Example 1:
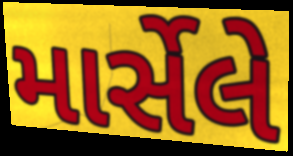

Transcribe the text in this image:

માર્સેલે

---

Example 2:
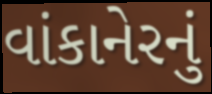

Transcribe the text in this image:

વાંકાનેરનું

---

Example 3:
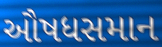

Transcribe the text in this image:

ઔષધસમાન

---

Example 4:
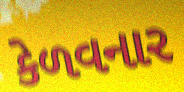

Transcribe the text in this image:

કેળવનાર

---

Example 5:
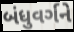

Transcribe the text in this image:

બંધુવર્ગને